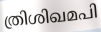
ത്രിശിഖമപി